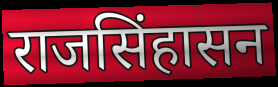
राजसिंहासन